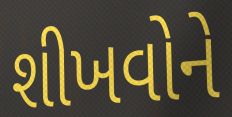
શીખવોને